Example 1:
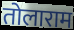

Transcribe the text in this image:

तोलाराम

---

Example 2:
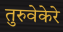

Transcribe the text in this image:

तुरुवेकेरे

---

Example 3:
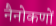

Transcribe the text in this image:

नैनोकणों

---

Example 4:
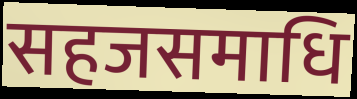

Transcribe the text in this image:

सहजसमाधि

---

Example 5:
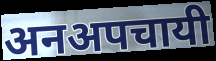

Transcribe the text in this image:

अनअपचायी